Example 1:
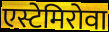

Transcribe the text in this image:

एस्टेमिरोवा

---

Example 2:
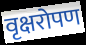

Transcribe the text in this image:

वृक्षरोपण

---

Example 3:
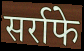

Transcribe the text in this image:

सर्राफे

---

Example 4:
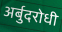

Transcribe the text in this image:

अर्बुदरोधी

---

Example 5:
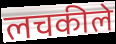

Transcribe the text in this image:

लचकीले